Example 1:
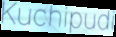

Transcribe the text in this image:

Kuchipudi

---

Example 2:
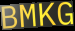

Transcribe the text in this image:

BMKG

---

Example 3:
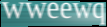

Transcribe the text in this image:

wweewq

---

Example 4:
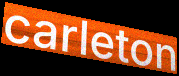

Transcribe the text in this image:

carleton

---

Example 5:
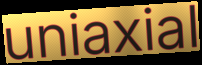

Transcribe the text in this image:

uniaxial